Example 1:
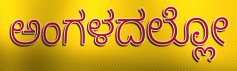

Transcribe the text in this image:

ಅಂಗಳದಲ್ಲೋ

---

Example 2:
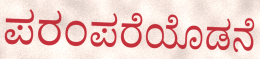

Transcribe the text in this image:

ಪರಂಪರೆಯೊಡನೆ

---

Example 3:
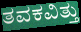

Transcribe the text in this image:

ತವಕವಿತ್ತು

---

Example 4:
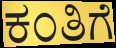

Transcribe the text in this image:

ಕಂತಿಗೆ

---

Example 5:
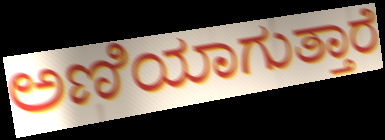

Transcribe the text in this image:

ಅಣಿಯಾಗುತ್ತಾರೆ